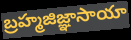
బ్రహ్మజిజ్ఞాసాయా